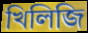
খিলিজি